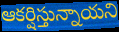
ఆకర్షిస్తున్నాయని